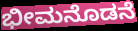
ಭೀಮನೊಡನೆ